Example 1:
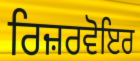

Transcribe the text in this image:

ਰਿਜ਼ਰਵੋਇਰ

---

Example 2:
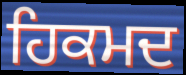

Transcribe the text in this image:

ਹਿਕਮਦ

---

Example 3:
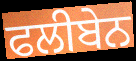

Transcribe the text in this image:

ਫਲੀਬੇਨ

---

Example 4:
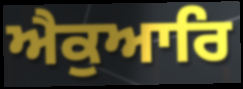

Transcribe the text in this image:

ਐਕੁਆਰਿ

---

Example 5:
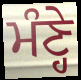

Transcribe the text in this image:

ਮੰਣ੍ਹੇ